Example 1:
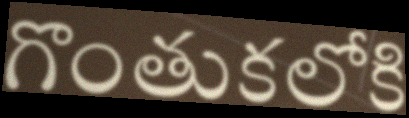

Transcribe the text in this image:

గొంతుకలోకి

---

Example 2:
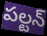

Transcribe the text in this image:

పల్టన్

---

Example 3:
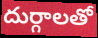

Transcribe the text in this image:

దుర్గాలతో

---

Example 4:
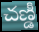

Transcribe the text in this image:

చణ్డీ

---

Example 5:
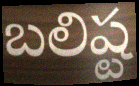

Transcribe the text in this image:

బలిష్ట